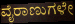
ವೈರಾಣುಗಳೇ